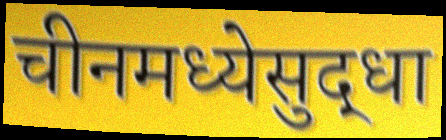
चीनमध्येसुद्धा